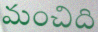
మంచిది